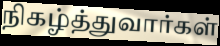
நிகழ்த்துவார்கள்